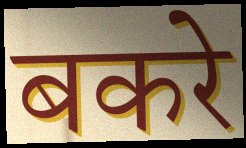
बकरे